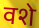
वशे